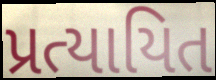
પ્રત્યાયિત